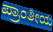
ಪ್ರಾಂತೀಯ